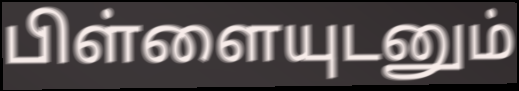
பிள்ளையுடனும்